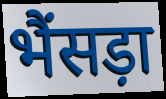
भैंसड़ा